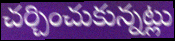
చర్చించుకున్నట్లు